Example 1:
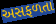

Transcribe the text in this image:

અસફળતા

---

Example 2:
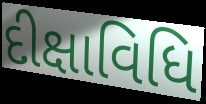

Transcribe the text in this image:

દીક્ષાવિધિ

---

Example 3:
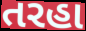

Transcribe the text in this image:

તરહા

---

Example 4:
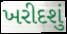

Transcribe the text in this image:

ખરીદશું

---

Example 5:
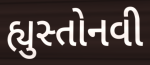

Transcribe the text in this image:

હ્યુસ્તોનવી